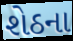
શેઠના